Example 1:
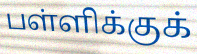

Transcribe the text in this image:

பள்ளிக்குக்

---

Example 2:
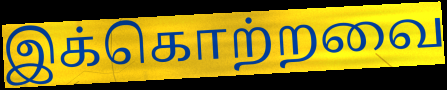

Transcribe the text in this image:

இக்கொற்றவை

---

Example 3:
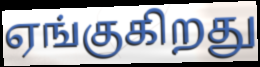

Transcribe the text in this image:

ஏங்குகிறது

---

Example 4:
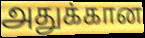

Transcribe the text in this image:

அதுக்கான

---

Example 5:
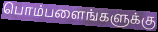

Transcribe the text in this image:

பொம்பளைங்களுக்கு